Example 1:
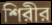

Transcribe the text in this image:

শিরীর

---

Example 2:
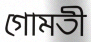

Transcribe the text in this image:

গোমতী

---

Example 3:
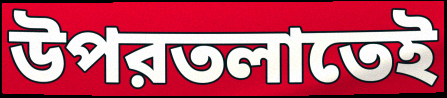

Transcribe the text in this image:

উপরতলাতেই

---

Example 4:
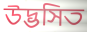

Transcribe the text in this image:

উদ্ভসিত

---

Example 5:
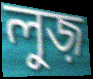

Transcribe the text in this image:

লুজ়